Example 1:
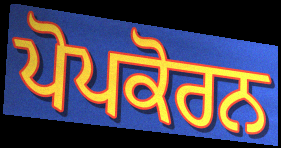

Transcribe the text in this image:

ਪੋਪਕੋਰਨ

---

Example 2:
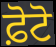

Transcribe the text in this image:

ਫ਼ੋਟੋ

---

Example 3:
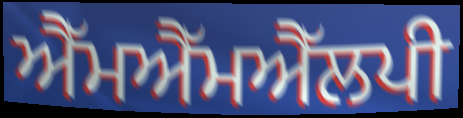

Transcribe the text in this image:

ਐੱਮਐੱਮਐੱਲਪੀ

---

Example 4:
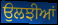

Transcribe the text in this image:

ਉਲਝੀਆਂ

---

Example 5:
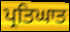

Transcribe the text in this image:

ਪ੍ਰਤਿਘਾਤ